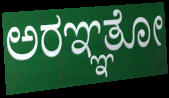
ಅರಞ್ಞತೋ